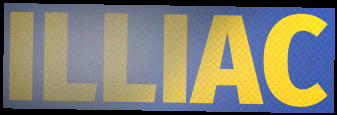
ILLIAC